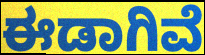
ಈಡಾಗಿವೆ